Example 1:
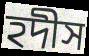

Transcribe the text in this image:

হদীস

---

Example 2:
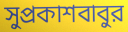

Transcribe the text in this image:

সুপ্রকাশবাবুর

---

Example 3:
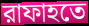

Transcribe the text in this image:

রাফাহতে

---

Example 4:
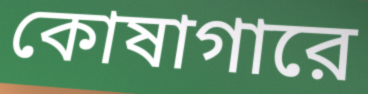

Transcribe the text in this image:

কোষাগারে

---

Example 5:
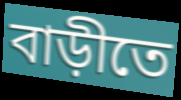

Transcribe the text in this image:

বাড়ীতে